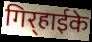
गिर्‍हाईके